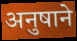
अनुषाने